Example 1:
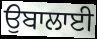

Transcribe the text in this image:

ਉਬਾਲਾਈ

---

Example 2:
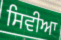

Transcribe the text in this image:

ਸਿਵੀਆ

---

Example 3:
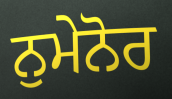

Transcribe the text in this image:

ਨੁਮੇਨੋਰ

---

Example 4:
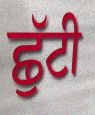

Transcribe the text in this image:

ਛੁੱਟੀ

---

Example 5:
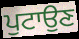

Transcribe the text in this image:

ਪੁਟਾਉਣ